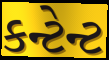
કન્ટેન્ટ